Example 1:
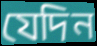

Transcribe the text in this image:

যেদিন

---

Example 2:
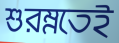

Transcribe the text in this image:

শুরম্নতেই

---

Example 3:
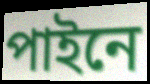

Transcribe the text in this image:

পাইনে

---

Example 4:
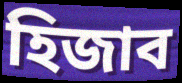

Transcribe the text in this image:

হিজাব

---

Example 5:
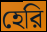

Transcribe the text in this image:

হেরি